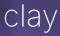
clay